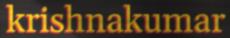
krishnakumar